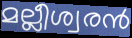
മല്ലീശ്വരൻ